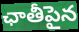
ఛాతీపైన